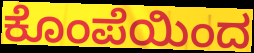
ಕೊಂಪೆಯಿಂದ